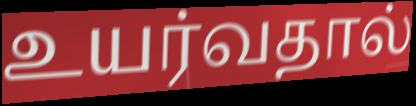
உயர்வதால்